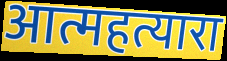
आत्महत्यारा